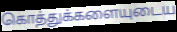
கொத்துக்களையுடைய